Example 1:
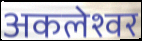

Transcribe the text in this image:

अकलेश्वर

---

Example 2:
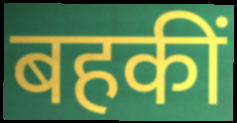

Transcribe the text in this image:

बहकीं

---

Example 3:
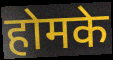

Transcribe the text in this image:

होमके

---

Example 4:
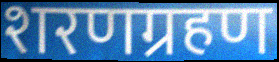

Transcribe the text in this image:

शरणग्रहण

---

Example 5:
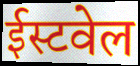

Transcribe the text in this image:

ईस्टवेल